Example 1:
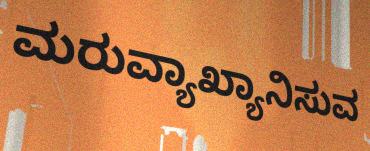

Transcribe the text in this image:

ಮರುವ್ಯಾಖ್ಯಾನಿಸುವ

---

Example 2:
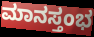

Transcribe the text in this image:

ಮಾನಸ್ತಂಭ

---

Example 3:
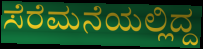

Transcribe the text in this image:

ಸೆರೆಮನೆಯಲ್ಲಿದ್ದ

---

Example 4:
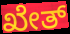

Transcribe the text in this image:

ಖೇತ್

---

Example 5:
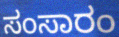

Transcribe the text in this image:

ಸಂಸಾರಂ